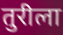
तुरीला